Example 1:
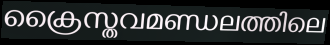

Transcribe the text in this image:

ക്രൈസ്തവമണ്ഡലത്തിലെ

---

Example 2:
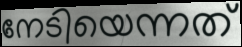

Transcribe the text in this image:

നേടിയെന്നത്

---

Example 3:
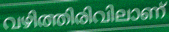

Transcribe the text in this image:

വഴിത്തിരിവിലാണ്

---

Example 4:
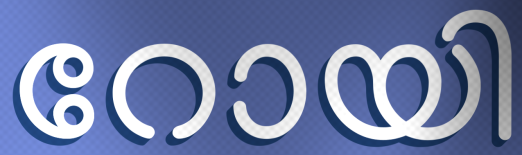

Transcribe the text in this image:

റോയി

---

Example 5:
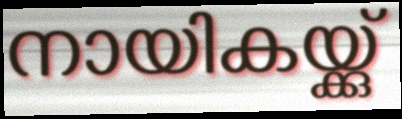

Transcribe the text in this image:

നായികയ്ക്കു്